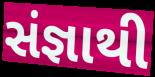
સંજ્ઞાથી